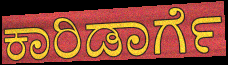
ಕಾರಿಡಾರ್ಗೆ